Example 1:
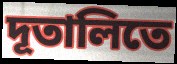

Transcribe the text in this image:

দূতালিতে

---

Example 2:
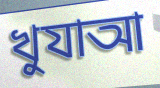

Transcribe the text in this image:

খুযাআ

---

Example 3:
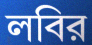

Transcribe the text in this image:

লবির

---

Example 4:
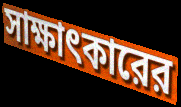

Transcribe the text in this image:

সাক্ষাৎকারের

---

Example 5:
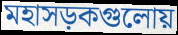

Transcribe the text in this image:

মহাসড়কগুলোয়